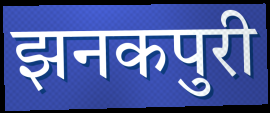
झनकपुरी